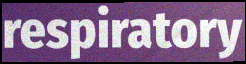
respiratory